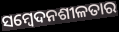
ସମ୍ୱେଦନଶୀଳତାର